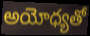
అయోధ్యతో